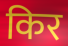
किर